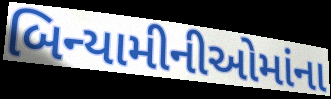
બિન્યામીનીઓમાંના